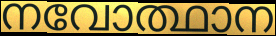
നവോത്ഥാന